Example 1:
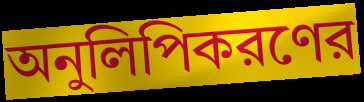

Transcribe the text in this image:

অনুলিপিকরণের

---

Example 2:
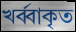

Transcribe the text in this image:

খর্ব্বাকৃত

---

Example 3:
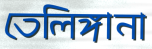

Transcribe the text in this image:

তেলিঙ্গানা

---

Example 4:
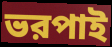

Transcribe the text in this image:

ভরপাই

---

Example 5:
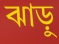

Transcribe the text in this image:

ঝাড়ু